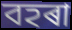
বহৰা